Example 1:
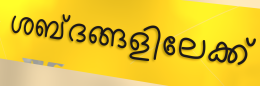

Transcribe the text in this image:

ശബ്ദങ്ങളിലേക്ക്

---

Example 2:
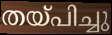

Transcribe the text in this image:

തയ്പിച്ചു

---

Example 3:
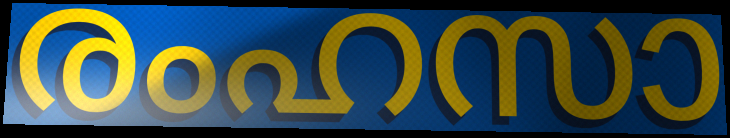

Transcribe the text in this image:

രംഹസാ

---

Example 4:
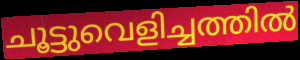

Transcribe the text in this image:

ചൂട്ടുവെളിച്ചത്തിൽ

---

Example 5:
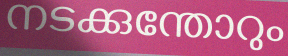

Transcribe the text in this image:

നടക്കുന്തോറും